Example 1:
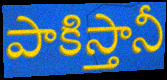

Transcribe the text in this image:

పాకిస్తానీ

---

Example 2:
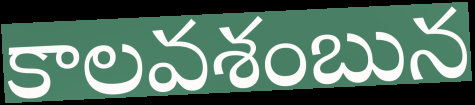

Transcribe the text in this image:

కాలవశంబున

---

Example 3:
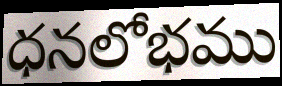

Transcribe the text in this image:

ధనలోభము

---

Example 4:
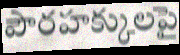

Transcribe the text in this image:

పౌరహక్కులపై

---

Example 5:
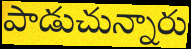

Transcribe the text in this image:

పాడుచున్నారు